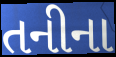
તનીના